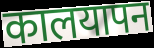
कालयापन